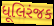
ધૂલિરંજક